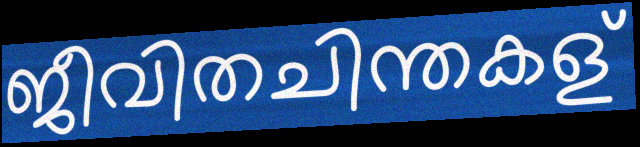
ജീവിതചിന്തകള്